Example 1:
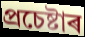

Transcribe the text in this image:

প্ৰচেষ্টাৰ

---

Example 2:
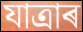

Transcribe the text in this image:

যাত্ৰাৰ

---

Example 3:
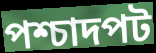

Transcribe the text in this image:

পশ্চাদপট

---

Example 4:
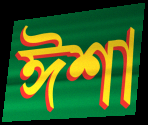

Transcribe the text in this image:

ঈশা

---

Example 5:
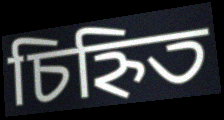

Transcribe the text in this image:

চিহ্নিত